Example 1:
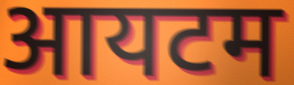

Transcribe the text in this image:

आयटम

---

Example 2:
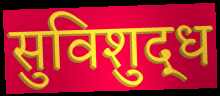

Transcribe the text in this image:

सुविशुद्ध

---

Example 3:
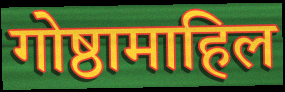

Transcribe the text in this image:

गोष्ठामाहिल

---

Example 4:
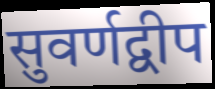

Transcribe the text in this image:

सुवर्णद्वीप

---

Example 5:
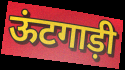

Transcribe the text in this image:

ऊंटगाड़ी